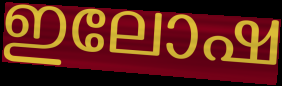
ഇലോഷ